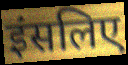
इंसलिए